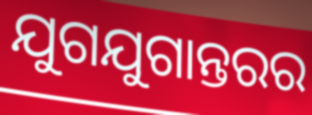
ଯୁଗଯୁଗାନ୍ତରର